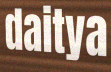
daitya